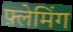
फ़्लेमिंग